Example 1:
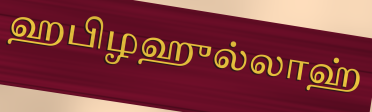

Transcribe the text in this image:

ஹபிழஹுல்லாஹ்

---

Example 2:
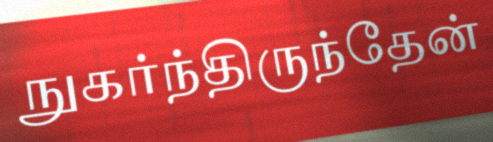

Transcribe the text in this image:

நுகர்ந்திருந்தேன்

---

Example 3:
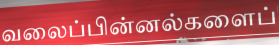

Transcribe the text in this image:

வலைப்பின்னல்களைப்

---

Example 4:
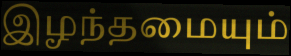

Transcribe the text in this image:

இழந்தமையும்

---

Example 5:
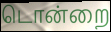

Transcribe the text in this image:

டொன்றை